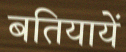
बतियायें